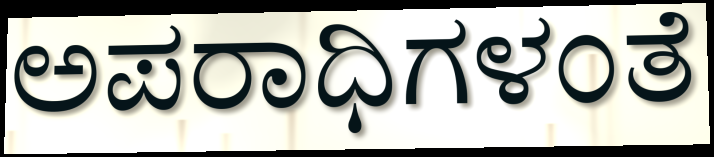
ಅಪರಾಧಿಗಳಂತೆ